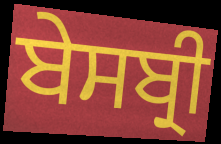
ਬੇਸਬ੍ਰੀ